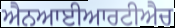
ਐਨਆਈਆਰਟੀਐਚ